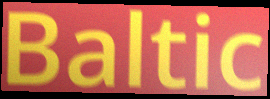
Baltic